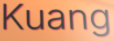
Kuang